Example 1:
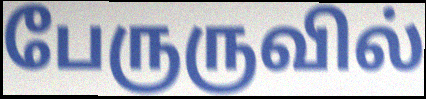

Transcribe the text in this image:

பேருருவில்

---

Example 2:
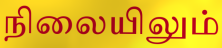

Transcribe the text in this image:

நிலையிலும்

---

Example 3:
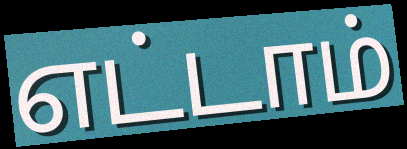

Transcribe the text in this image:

எட்டாம்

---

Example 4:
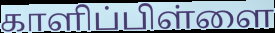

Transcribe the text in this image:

காளிப்பிள்ளை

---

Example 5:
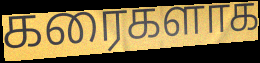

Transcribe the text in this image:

கரைகளாக